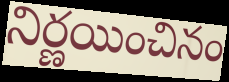
నిర్ణయించినం